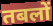
तबलों